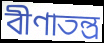
বীণাতন্ত্র